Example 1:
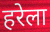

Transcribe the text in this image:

हरेला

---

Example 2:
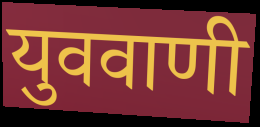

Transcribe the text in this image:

युववाणी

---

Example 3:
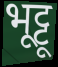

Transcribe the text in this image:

भूट्टू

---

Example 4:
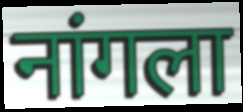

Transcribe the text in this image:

नांगला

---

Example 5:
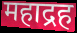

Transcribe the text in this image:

महाद्रह